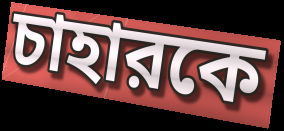
চাহারকে